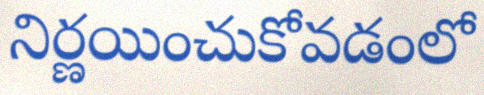
నిర్ణయించుకోవడంలో